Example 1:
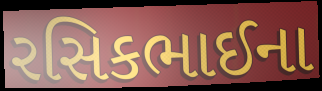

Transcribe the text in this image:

રસિકભાઈના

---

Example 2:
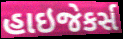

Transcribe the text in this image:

હાઇજેકર્સ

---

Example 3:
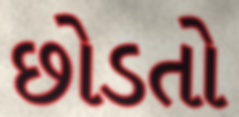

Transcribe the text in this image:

છોડતો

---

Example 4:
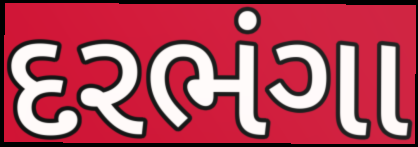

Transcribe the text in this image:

દરભંગા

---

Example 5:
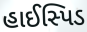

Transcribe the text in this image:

હાઈસ્પિડ